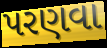
પરણવા